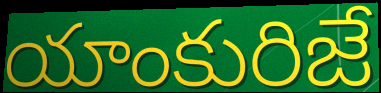
యాంకురిజే